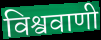
विश्ववाणी